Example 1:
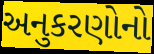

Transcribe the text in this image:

અનુકરણોનો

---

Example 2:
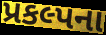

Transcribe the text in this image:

પ્રકલ્પના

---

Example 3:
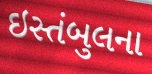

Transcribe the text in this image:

ઇસ્તંબુલના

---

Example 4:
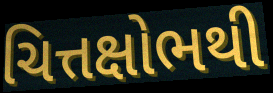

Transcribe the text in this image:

ચિત્તક્ષોભથી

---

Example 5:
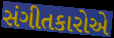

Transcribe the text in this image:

સંગીતકારોએ